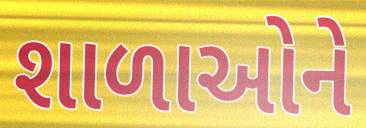
શાળાઓને